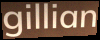
gillian